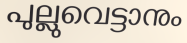
പുല്ലുവെട്ടാനും